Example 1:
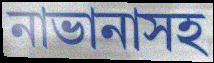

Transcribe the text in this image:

নাভানাসহ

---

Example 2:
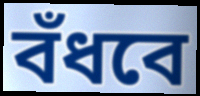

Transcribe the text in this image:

বঁধবে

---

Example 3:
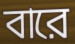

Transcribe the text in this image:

বারে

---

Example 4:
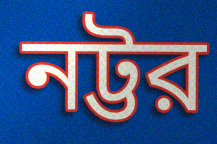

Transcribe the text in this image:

নট্টর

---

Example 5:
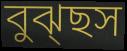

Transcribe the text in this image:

বুঝ্ছস